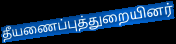
தீயணைப்புத்துறையினர்